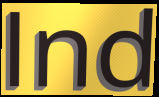
Ind